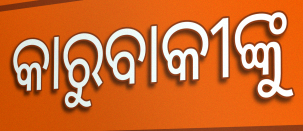
କାରୁବାକୀଙ୍କୁ